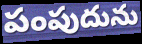
పంపుదును